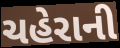
ચહેરાની